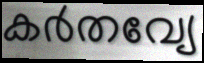
കർതവ്യേ